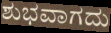
ಶುಭವಾಗದು